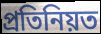
প্ৰতিনিয়ত